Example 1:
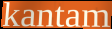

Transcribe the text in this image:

kantam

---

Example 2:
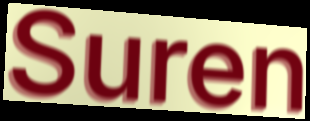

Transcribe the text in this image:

Suren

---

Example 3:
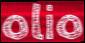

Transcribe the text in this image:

olio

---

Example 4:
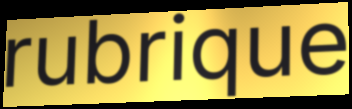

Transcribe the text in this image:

rubrique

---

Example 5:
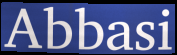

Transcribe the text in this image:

Abbasi